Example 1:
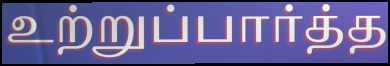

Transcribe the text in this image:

உற்றுப்பார்த்த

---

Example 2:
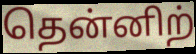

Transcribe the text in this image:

தென்னிற்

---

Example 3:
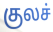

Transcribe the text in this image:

குலச்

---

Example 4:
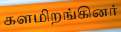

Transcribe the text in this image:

களமிறங்கினர்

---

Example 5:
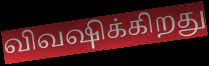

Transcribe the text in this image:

விவஷிக்கிறது